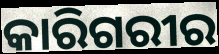
କାରିଗରୀର